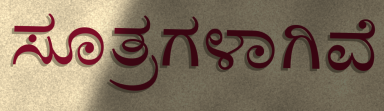
ಸೂತ್ರಗಳಾಗಿವೆ